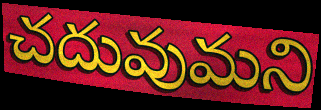
చదువుమని